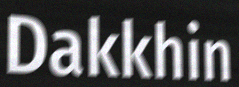
Dakkhin